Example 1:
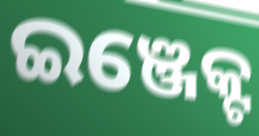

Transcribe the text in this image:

ଇଞ୍ଜେକ୍ଟ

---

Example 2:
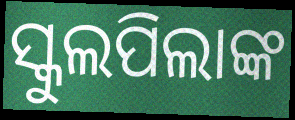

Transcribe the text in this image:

ସ୍କୁଲପିଲାଙ୍କ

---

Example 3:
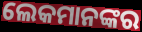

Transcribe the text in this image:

ଲେକମାନଙ୍କର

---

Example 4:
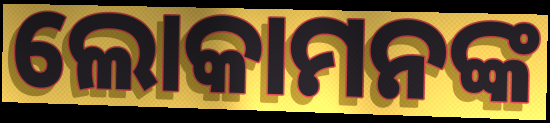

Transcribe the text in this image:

ଲୋକାମନଙ୍କ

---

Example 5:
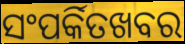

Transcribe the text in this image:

ସଂପର୍କିତଖବର